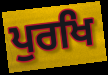
ਪੁਰਖਿ